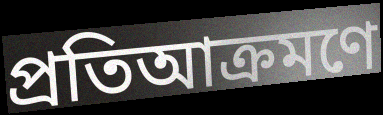
প্রতিআক্রমণে